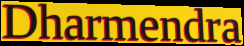
Dharmendra